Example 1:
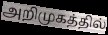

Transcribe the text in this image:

அறிமுகத்தில்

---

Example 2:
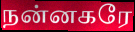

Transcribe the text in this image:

நன்னகரே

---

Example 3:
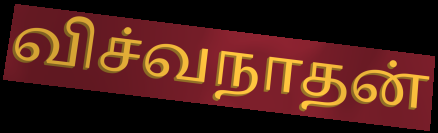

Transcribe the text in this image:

விச்வநாதன்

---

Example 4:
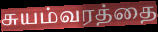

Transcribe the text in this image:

சுயம்வரத்தை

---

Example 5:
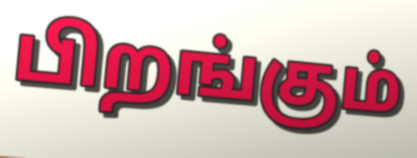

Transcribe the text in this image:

பிறங்கும்